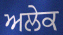
ਅਲੇਕ